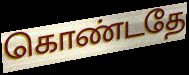
கொண்டதே